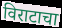
विराटाचा